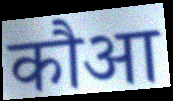
कौआ